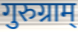
गुरुग्राम्